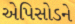
એપિસોડને